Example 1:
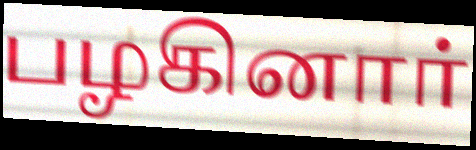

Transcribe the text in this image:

பழகினார்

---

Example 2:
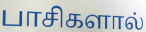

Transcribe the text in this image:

பாசிகளால்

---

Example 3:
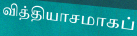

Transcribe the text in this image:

வித்தியாசமாகப்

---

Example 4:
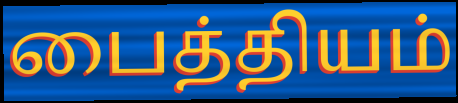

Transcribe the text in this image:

பைத்தியம்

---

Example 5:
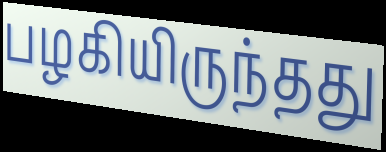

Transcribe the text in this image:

பழகியிருந்தது